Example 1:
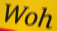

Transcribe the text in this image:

Woh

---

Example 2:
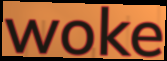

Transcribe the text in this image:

woke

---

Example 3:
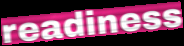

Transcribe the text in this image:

readiness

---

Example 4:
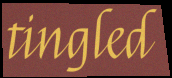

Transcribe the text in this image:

tingled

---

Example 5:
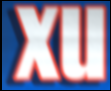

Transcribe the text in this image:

xu